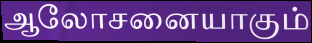
ஆலோசனையாகும்